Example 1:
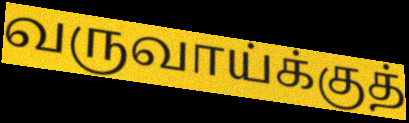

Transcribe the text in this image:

வருவாய்க்குத்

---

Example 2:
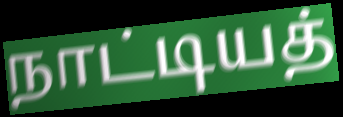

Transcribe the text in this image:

நாட்டியத்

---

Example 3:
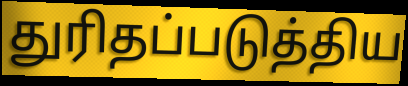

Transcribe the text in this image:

துரிதப்படுத்திய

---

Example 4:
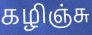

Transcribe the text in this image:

கழிஞ்சு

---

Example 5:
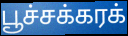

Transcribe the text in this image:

பூச்சக்கரக்